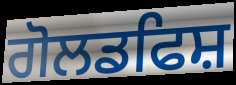
ਗੋਲਡਫਿਸ਼